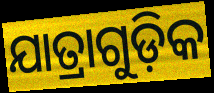
ଯାତ୍ରାଗୁଡ଼ିକ